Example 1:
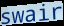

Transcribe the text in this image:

swair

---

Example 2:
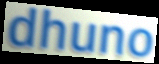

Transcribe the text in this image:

dhuno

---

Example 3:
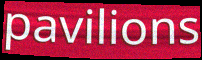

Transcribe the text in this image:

pavilions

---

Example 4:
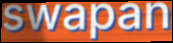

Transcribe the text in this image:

swapan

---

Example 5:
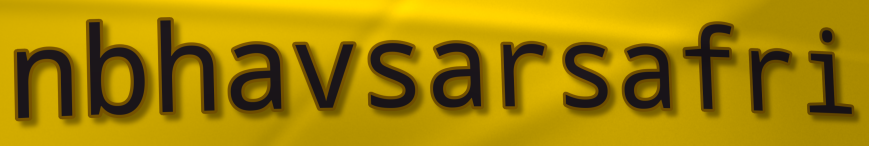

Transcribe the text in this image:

nbhavsarsafri